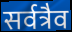
सर्वत्रैव